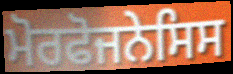
ਮੋਰਫੋਜਨੇਸਿਸ